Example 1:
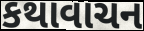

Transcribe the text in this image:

કથાવાચન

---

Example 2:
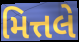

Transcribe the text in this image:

મિત્તલે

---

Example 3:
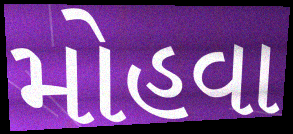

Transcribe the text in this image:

મોહવા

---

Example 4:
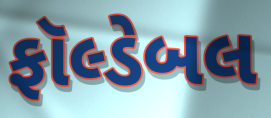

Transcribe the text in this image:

ફૉલ્ડેબલ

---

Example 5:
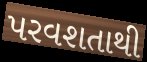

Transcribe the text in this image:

પરવશતાથી